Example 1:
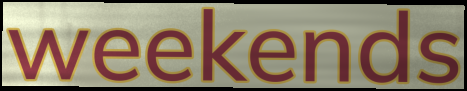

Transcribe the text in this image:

weekends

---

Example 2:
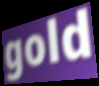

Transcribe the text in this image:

gold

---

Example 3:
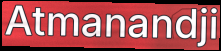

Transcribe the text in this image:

Atmanandji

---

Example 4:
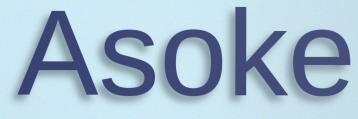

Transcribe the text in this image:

Asoke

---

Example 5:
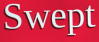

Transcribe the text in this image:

Swept